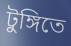
টুঙ্গিতে